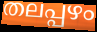
തലപ്പഴം